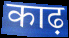
काढ़